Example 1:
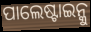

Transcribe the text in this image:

ପାଲେଷ୍ଟାଇନ୍କୁ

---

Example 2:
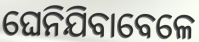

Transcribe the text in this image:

ଘେନିଯିବାବେଳେ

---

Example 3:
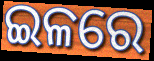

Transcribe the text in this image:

ଇଳରେ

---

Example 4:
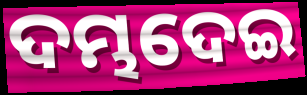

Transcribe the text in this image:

ଦମ୍ଭଦେଇ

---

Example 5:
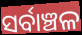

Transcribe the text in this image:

ସର୍ବାଞ୍ଚଳ